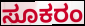
ಸೂಕರಂ